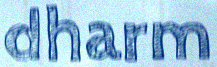
dharm